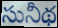
సునీథ